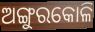
ଅଙ୍ଗୁରକୋଳି